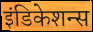
इंडिकेशन्स